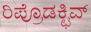
ರಿಪ್ರೊಡಕ್ಟಿವ್